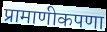
प्रामाणीकपणा